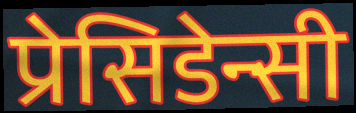
प्रेसिडेन्सी